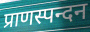
प्राणस्पन्दन